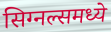
सिग्नल्समध्ये